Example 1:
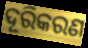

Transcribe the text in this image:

ଦୂରିକରଣ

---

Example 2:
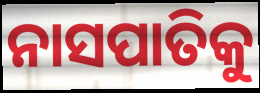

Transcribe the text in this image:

ନାସପାତିକୁ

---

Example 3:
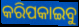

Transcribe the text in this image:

କରିପକାଇବୁ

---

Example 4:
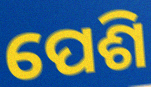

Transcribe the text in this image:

ପେଶି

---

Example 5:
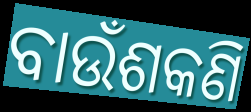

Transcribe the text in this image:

ବାଉଁଶକଣି